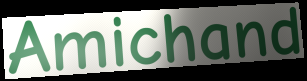
Amichand